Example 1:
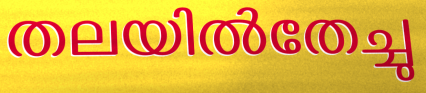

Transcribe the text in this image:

തലയിൽതേച്ചു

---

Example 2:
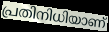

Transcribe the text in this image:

പ്രതിനിധിയാണ്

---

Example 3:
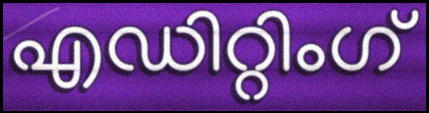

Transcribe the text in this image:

എഡിറ്റിംഗ്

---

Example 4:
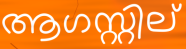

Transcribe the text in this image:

ആഗസ്റ്റില്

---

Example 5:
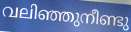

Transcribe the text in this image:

വലിഞ്ഞുനീണ്ടു